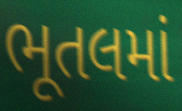
ભૂતલમાં